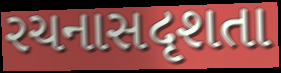
રચનાસદૃશતા